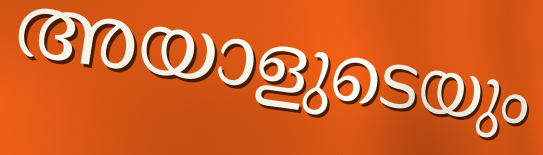
അയാളുടെയും